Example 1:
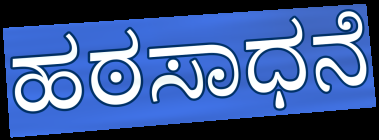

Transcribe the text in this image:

ಹಠಸಾಧನೆ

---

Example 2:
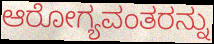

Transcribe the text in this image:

ಆರೋಗ್ಯವಂತರನ್ನು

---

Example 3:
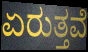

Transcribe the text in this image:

ಏರುತ್ತವೆ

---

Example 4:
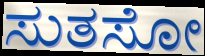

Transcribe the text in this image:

ಸುತಸೋ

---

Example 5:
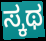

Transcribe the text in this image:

ಸ್ಕಥ